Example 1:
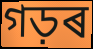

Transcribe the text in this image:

গড়ৰ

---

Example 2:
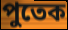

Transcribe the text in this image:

পুতেক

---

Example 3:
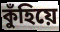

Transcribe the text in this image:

কুঁহিয়ে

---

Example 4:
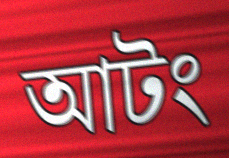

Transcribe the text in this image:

আটং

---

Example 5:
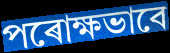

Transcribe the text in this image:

পৰোক্ষভাবে